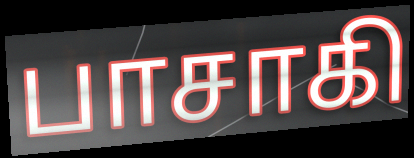
பாசாகி